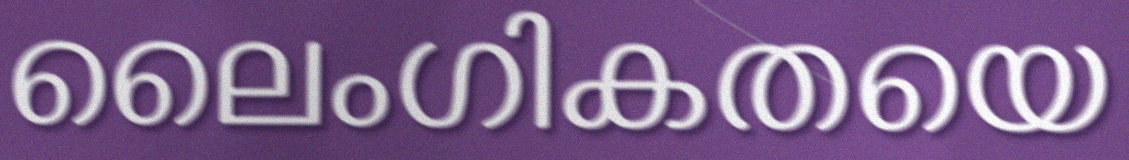
ലൈംഗികതയെ